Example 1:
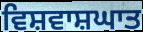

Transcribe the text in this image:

ਵਿਸ਼ਵਾਸ਼ਘਾਤ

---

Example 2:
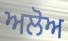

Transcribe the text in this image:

ਅਲੋਅ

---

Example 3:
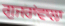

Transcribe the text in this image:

ਗੁਜਰਾਂਵਾਲਾ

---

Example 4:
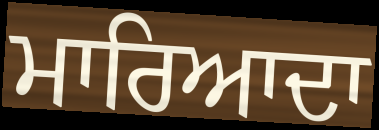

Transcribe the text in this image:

ਮਾਰਿਆਦਾ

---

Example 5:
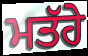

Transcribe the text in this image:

ਮਤੱਹੇ